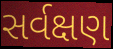
સર્વક્ષણ